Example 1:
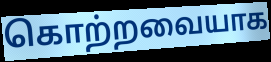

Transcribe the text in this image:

கொற்றவையாக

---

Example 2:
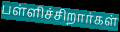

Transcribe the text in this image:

பள்ளிச்சிறார்கள்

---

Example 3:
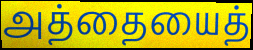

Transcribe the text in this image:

அத்தையைத்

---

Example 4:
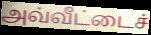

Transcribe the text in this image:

அவ்வீட்டைச்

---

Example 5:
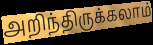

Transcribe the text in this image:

அறிந்திருக்கலாம்